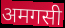
अमगसी